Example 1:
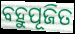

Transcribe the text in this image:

ବହୁପୂଜିତ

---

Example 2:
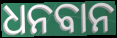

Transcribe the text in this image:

ଧନବାନ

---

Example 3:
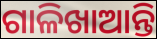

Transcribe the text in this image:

ଗାଳିଖାଆନ୍ତି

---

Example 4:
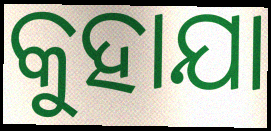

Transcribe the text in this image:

କୁହାଯା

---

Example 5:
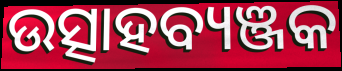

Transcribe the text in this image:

ଉତ୍ସାହବ୍ୟଞ୍ଜକ